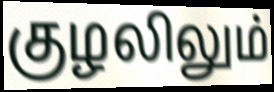
குழலிலும்